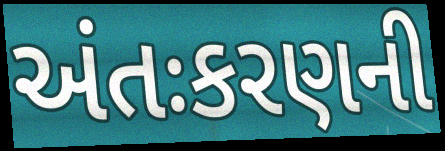
અંતઃકરણની